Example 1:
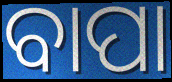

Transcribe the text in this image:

ବାପା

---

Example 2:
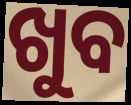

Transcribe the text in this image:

ଖୁବ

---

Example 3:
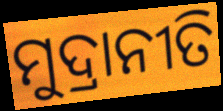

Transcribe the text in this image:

ମୁଦ୍ରାନୀତି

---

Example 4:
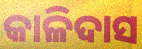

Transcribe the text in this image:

କାଳିଦାସ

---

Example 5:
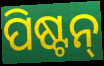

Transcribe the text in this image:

ପିଷ୍ଟନ୍